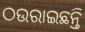
ଠଉରାଇଛନ୍ତି